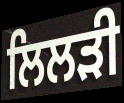
ਲਿਲੜੀ